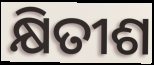
କ୍ଷିତୀଶ